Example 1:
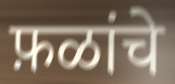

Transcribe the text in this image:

फ़ळांचे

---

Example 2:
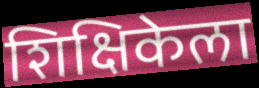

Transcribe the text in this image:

शिक्षिकेला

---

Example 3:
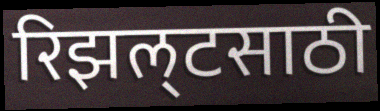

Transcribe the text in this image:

रिझल्टसाठी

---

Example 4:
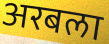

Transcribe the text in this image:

अरबला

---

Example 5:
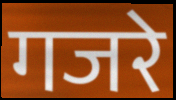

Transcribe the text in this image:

गजरे